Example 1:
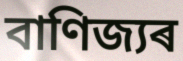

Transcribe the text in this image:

বাণিজ্যৰ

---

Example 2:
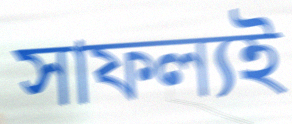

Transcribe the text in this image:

সাফল্যই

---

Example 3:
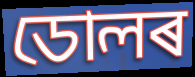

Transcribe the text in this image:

ডোলৰ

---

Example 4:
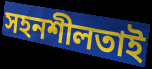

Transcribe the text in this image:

সহনশীলতাই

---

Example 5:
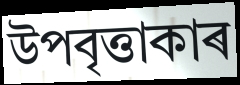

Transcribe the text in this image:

উপবৃত্তাকাৰ